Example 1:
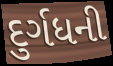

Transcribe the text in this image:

દુર્ગધની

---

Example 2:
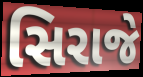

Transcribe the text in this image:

સિરાજે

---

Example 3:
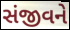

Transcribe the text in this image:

સંજીવને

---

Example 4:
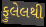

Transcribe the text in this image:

ફુલેલથી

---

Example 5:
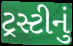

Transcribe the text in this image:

ટ્રસ્ટીનું